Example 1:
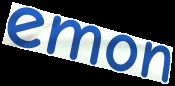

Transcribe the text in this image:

emon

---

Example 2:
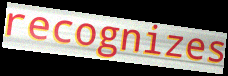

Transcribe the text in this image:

recognizes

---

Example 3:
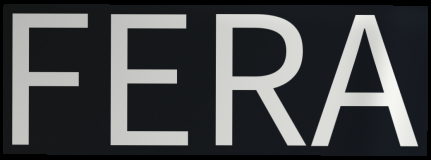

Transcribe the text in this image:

FERA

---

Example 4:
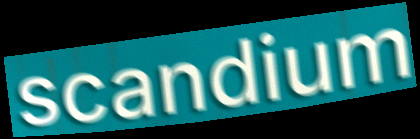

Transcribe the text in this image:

scandium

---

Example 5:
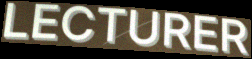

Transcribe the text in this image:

LECTURER